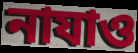
নাযাও